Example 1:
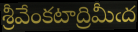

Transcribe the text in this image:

శ్రీవేంకటాద్రిమీఁద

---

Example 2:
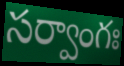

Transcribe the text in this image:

సర్వాంగః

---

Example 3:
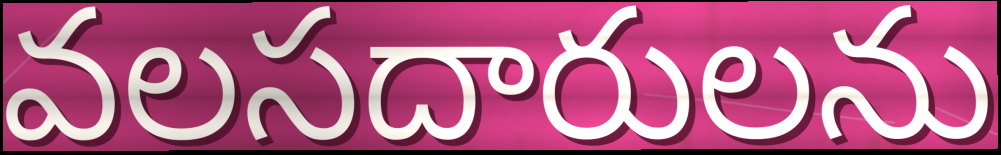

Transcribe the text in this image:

వలసదారులను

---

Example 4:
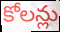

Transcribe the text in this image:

కోలన్లు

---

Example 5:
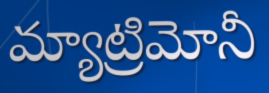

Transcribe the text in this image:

మ్యాట్రిమోనీ